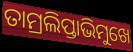
ତାମ୍ରଲିପ୍ତାଭିମୁଖେ